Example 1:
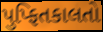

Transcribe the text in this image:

પુપ્ફિતકાલતો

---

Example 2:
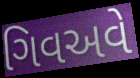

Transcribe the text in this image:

ગિવઅવે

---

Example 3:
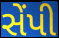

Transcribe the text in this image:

સેંપી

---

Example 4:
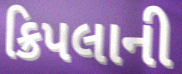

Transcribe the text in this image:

ક્રિપલાની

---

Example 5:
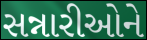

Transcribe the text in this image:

સન્નારીઓને